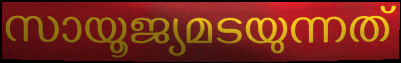
സായൂജ്യമടയുന്നത്